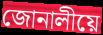
জোনালীয়ে